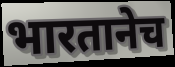
भारतानेच